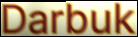
Darbuk